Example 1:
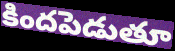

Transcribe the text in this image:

కిందపెడుతూ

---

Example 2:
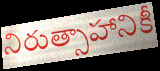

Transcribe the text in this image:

నిరుత్సాహానికీ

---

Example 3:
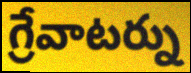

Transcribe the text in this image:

గ్రేవాటర్ను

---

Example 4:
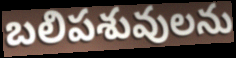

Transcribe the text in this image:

బలిపశువులను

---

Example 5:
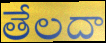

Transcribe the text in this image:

తేలదా